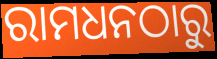
ରାମଧନଠାରୁ